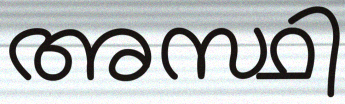
അസ്ഥി